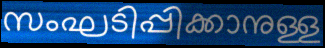
സംഘടിപ്പിക്കാനുള്ള